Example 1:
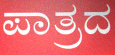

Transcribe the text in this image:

ಪಾತ್ರದ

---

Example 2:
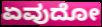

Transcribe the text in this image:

ಏವುದೋ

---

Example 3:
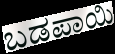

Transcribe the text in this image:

ಬಡಪಾಯಿ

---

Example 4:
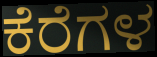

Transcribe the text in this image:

ಕೆರೆಗಳ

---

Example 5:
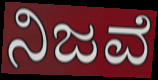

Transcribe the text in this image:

ನಿಜವೆ